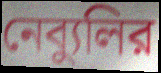
নেব্যুলির